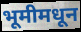
भूमीमधून